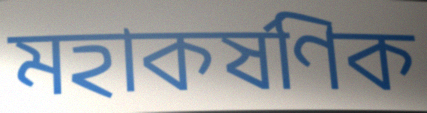
মহাকৰ্ষণিক